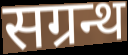
सग्रन्थ